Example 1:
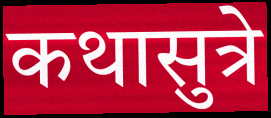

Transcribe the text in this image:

कथासुत्रे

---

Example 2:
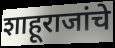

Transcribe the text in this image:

शाहूराजांचे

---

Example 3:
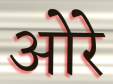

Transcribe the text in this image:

ओरे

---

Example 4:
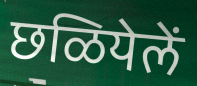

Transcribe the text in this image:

छळियेलें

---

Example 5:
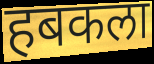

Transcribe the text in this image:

हबकला